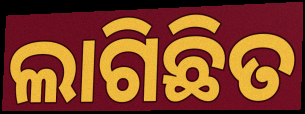
ଲାଗିଛିତ